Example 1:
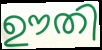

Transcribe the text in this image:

ഊതി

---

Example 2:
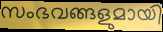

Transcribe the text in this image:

സംഭവങ്ങളുമായി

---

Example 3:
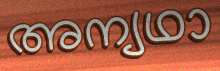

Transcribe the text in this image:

അന്യഥാ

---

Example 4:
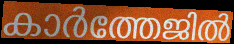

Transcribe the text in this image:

കാർത്തേജിൽ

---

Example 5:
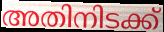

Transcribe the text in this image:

അതിനിടക്ക്